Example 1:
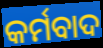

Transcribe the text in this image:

କର୍ମବାଦ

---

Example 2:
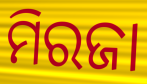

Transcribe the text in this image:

ମିରଜା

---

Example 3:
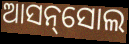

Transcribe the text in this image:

ଆସନ୍‌ସୋଲ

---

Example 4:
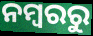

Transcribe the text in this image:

ନମ୍ୱରରୁ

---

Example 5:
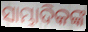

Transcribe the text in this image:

ସାମ୍ଭାଦିକଙ୍କ